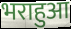
भराहुआ